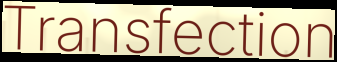
Transfection